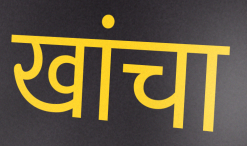
खांचा